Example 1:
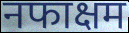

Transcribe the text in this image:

नफाक्षम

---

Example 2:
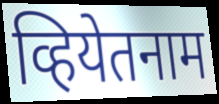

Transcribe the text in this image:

व्हियेतनाम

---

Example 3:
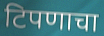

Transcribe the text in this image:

टिपणाचा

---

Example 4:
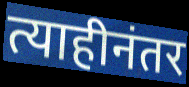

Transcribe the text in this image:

त्याहीनंतर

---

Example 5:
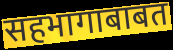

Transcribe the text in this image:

सहभागाबाबत